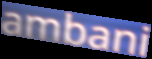
ambani